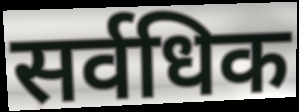
सर्वधिक